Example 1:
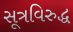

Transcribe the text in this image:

સૂત્રવિરુદ્ધ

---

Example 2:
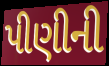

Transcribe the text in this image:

પીણીની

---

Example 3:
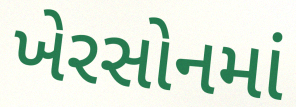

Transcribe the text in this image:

ખેરસોનમાં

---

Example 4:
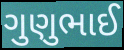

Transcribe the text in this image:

ગુણુભાઈ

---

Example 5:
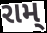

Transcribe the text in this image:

રામ્